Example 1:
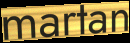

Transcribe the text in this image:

martan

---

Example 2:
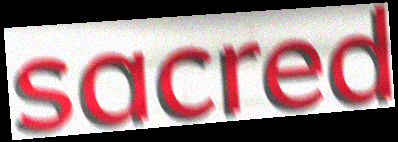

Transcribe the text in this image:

sacred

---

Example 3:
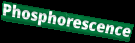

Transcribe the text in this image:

Phosphorescence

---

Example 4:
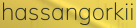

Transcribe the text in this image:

hassangorkii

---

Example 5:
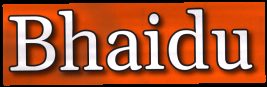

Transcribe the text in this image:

Bhaidu